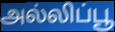
அல்லிப்பூ